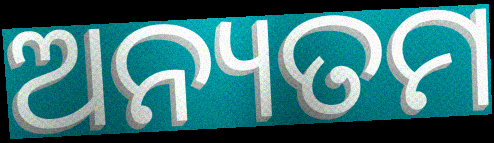
ଅନ୍ୟତମ